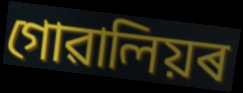
গোৱালিয়ৰ